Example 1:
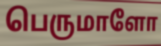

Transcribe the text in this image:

பெருமாளோ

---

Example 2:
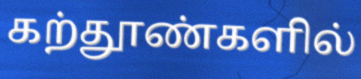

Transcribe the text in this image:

கற்தூண்களில்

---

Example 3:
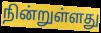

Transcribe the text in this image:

நின்றுள்ளது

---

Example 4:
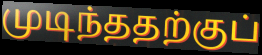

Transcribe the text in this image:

முடிந்ததற்குப்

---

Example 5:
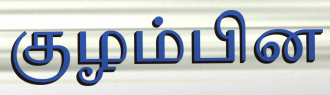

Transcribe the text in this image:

குழம்பின